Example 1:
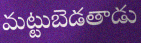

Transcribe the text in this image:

మట్టుబెడతాడు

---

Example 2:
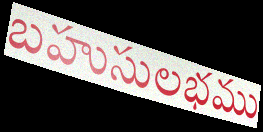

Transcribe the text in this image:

బహుసులభము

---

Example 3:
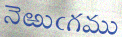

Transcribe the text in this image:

నెఱుఁగము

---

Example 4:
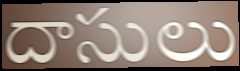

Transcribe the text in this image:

దాసులు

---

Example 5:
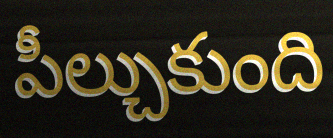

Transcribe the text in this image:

పీల్చుకుంది